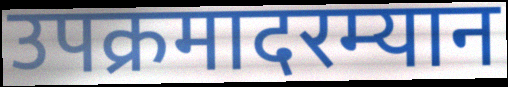
उपक्रमादरम्यान